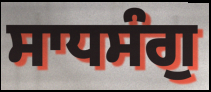
ਸਾਧਸੰਗੁ